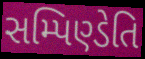
સમ્પિણ્ડેતિ